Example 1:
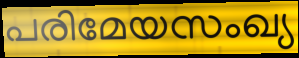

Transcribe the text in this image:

പരിമേയസംഖ്യ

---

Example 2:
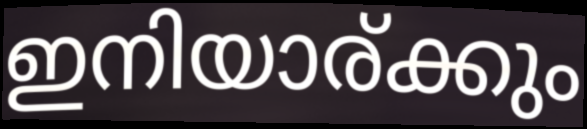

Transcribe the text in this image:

ഇനിയാര്ക്കും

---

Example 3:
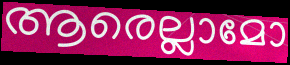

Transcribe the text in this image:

ആരെല്ലാമോ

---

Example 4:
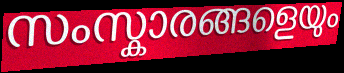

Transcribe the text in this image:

സംസ്കാരങ്ങളെയും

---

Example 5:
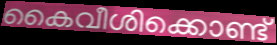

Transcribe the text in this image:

കൈവീശിക്കൊണ്ട്